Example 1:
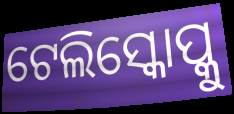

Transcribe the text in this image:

ଟେଲିସ୍କୋପ୍କୁ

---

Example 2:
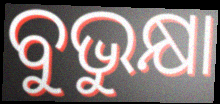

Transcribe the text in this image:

ବୁଭୁକ୍ଷା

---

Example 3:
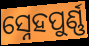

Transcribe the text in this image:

ସ୍ନେହପୁର୍ଣ୍ଣ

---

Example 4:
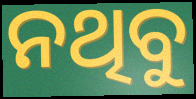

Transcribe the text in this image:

ନଥିବୁ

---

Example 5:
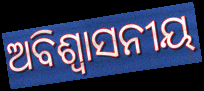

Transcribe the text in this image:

ଅବିଶ୍ୱାସନୀୟ